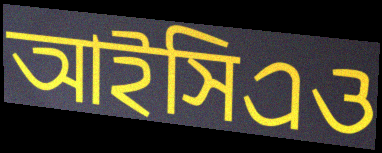
আইসিএও